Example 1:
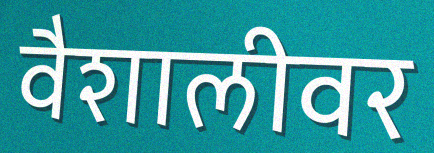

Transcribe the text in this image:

वैशालीवर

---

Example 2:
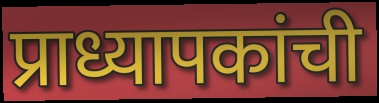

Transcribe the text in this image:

प्राध्यापकांची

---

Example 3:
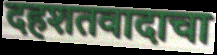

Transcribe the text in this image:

दहशतवादाचा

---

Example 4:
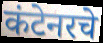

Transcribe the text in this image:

कंटेनरचे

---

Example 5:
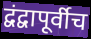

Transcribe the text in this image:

द्वंद्वापूर्वीच